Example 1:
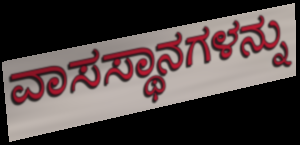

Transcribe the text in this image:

ವಾಸಸ್ಥಾನಗಳನ್ನು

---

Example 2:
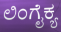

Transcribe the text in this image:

ಲಿಂಗೈಕ್ಯ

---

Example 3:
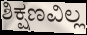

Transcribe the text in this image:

ಶಿಕ್ಷಣವಿಲ್ಲ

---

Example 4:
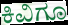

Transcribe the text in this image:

ಕಿವಿಗೂ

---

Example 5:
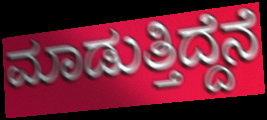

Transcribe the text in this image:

ಮಾಡುತ್ತಿದ್ದೆನೆ